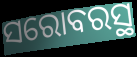
ସରୋବରସ୍ଥ